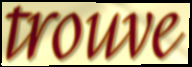
trouve